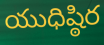
యుధిష్ఠిర